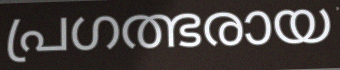
പ്രഗത്ഭരായ